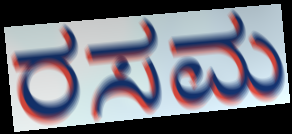
ರಸಮ